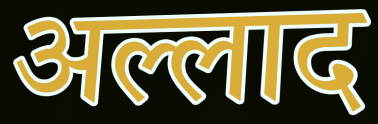
अल्लाद